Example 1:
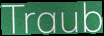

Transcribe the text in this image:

Traub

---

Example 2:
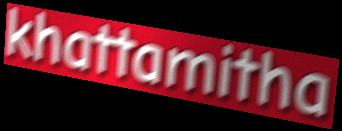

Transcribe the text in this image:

khattamitha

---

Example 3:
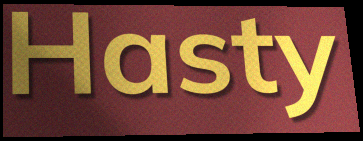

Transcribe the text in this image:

Hasty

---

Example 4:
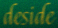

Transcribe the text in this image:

deside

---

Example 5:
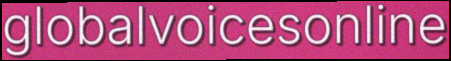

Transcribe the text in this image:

globalvoicesonline